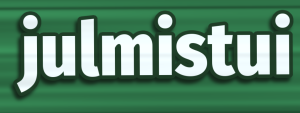
julmistui